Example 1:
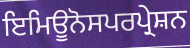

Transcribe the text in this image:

ਇਮਿਊਨੋਸਪਰਪ੍ਰੇਸ਼ਨ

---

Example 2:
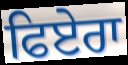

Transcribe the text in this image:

ਫਿਏਰਾ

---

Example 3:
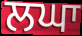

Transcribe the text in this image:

ਲਘਾ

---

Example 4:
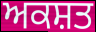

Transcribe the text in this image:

ਅਕਸ਼ਤ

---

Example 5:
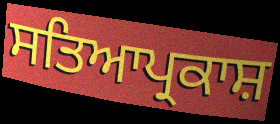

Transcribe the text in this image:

ਸਤਿਆਪ੍ਰਕਾਸ਼